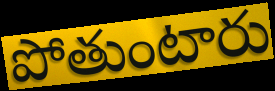
పోతుంటారు